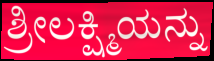
ಶ್ರೀಲಕ್ಷ್ಮಿಯನ್ನು